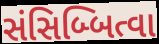
સંસિબ્બિત્વા